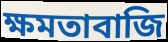
ক্ষমতাবাজি